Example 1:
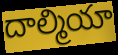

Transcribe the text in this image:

దాల్మియా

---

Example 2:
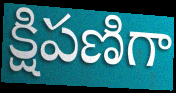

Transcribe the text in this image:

క్షిపణిగా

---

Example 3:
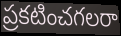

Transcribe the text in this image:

ప్రకటించగలరా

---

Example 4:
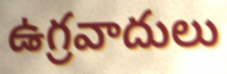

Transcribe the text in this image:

ఉగ్రవాదులు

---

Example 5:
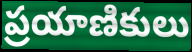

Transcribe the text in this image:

ప్రయాణికులు